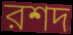
রশদ